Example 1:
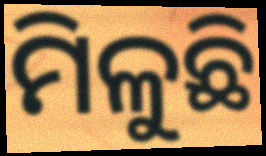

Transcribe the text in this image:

ମିଳୁଛି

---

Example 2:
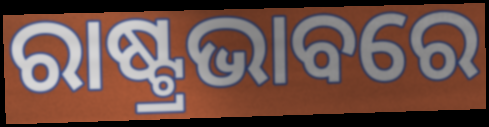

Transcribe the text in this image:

ରାଷ୍ଟ୍ରଭାବରେ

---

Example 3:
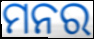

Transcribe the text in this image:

ମନର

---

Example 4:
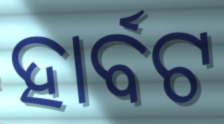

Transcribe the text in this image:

ହାର୍ବଟ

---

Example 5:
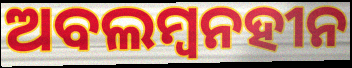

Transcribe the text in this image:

ଅବଲମ୍ବନହୀନ